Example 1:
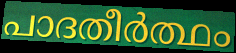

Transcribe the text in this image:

പാദതീർത്ഥം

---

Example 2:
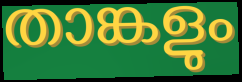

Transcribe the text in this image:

താങ്കളും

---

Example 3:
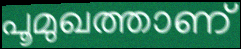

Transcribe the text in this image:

പൂമുഖത്താണ്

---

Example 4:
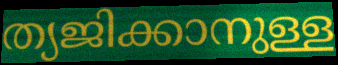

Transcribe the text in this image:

ത്യജിക്കാനുള്ള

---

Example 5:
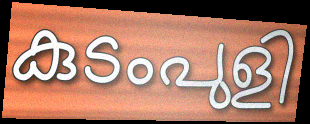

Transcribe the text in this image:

കുടംപുളി